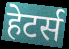
हेटर्स